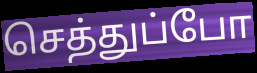
செத்துப்போ